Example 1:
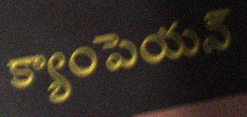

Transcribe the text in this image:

క్యాంపెయన్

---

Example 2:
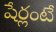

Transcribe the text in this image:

షేర్లంటే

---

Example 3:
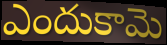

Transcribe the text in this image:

ఎందుకామె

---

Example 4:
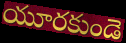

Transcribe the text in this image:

యూరకుండె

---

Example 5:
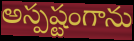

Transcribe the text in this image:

అస్పష్టంగాను